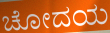
ಚೋದಯ